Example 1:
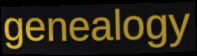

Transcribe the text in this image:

genealogy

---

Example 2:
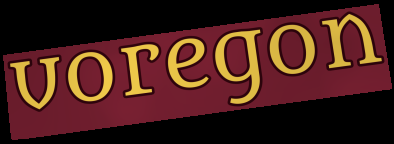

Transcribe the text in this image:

uoregon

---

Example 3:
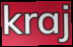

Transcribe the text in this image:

kraj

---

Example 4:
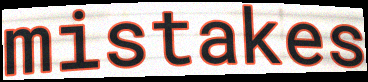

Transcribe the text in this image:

mistakes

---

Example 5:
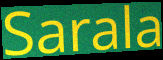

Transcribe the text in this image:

Sarala